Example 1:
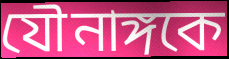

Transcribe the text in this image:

যৌনাঙ্গকে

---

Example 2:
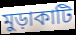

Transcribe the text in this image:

মুড়াকাটি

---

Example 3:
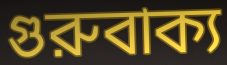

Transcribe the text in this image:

গুরুবাক্য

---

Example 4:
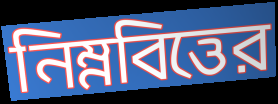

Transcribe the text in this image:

নিম্নবিত্তের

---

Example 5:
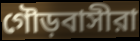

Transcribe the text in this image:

গৌড়বাসীরা